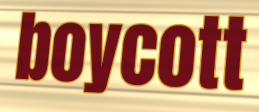
boycott